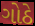
ગોઠે